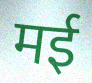
मई